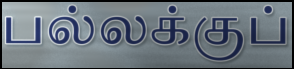
பல்லக்குப்